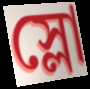
স্লো